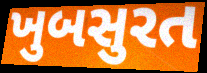
ખુબસુરત